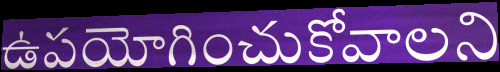
ఉపయోగించుకోవాలని